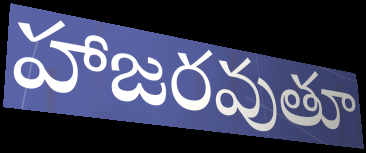
హాజరవుతూ